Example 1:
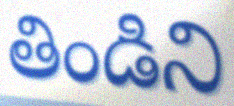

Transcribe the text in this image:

తిండిని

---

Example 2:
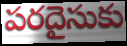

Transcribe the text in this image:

పరదైసుకు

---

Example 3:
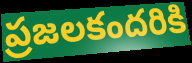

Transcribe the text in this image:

ప్రజలకందరికి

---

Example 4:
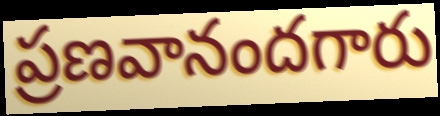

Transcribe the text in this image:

ప్రణవానందగారు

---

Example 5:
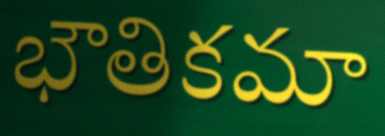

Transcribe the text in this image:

భౌతికమా